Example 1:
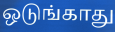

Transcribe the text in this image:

ஒடுங்காது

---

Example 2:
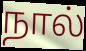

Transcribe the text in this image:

நால்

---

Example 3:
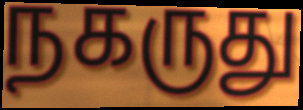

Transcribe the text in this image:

நகருது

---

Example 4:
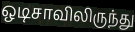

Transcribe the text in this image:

ஒடிசாவிலிருந்து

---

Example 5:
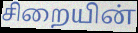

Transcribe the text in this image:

சிறையின்